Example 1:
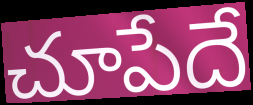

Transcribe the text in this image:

చూపేదే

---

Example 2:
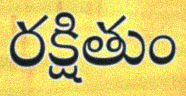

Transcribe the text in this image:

రక్షితుం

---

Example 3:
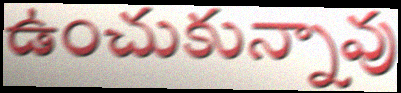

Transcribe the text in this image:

ఉంచుకున్నావు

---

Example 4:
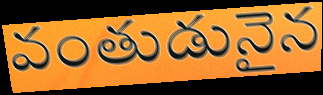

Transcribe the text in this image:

వంతుడునైన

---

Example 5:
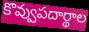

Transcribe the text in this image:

కొవ్వుపదార్థాల